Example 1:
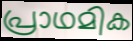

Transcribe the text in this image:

പ്രാഥമിക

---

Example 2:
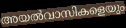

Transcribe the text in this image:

അയൽവാസികളെയും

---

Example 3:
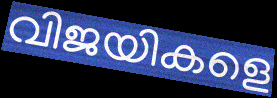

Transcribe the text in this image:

വിജയികളെ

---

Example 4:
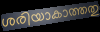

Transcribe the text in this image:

ശരിയാകാത്തതു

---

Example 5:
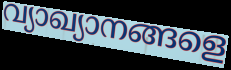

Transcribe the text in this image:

വ്യാഖ്യാനങ്ങളെ